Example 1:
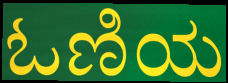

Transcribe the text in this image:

ಓಣಿಯ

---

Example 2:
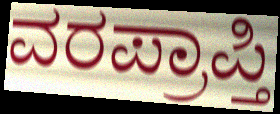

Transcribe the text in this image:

ವರಪ್ರಾಪ್ತಿ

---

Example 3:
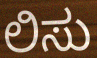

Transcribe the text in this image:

ಲಿಸು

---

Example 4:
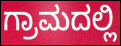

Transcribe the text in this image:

ಗ್ರಾಮದಲ್ಲಿ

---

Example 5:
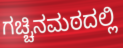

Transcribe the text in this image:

ಗಚ್ಚಿನಮಠದಲ್ಲಿ